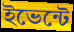
ইভেন্টে